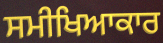
ਸਮੀਖਿਆਕਾਰ